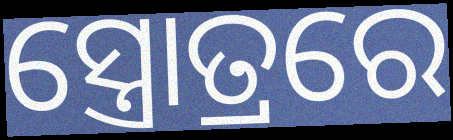
ସ୍ତ୍ରୋତ୍ରରେ